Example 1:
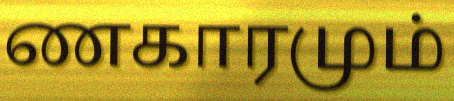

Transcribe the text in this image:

ணகாரமும்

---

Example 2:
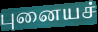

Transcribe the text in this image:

புனையச்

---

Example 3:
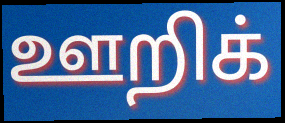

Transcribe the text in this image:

ஊறிக்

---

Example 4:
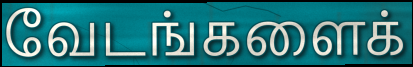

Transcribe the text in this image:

வேடங்களைக்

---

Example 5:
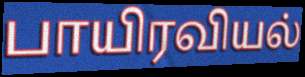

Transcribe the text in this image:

பாயிரவியல்